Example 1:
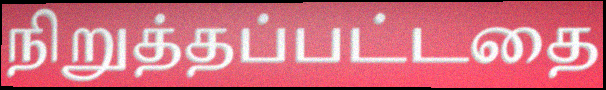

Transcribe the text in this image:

நிறுத்தப்பட்டதை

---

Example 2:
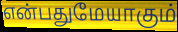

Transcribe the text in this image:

என்பதுமேயாகும்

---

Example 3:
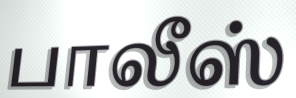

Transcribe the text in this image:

பாலீஸ்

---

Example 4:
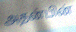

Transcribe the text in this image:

அதன்பின்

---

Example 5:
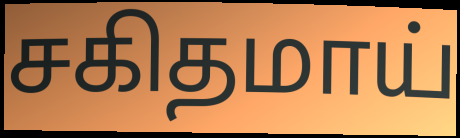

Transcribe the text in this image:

சகிதமாய்